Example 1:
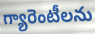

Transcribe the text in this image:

గ్యారెంటీలను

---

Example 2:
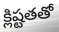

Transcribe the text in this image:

క్లిష్టతతో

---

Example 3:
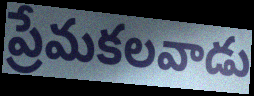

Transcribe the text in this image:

ప్రేమకలవాడు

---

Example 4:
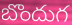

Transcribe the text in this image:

బొందుగ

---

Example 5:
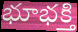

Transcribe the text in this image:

భూభక్తి